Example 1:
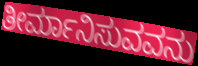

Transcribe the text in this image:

ತೀರ್ಮಾನಿಸುವವನು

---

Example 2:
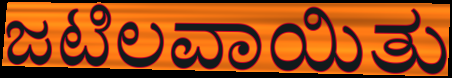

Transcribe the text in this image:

ಜಟಿಲವಾಯಿತು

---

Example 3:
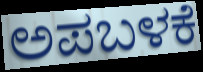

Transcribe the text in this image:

ಅಪಬಳಕೆ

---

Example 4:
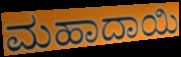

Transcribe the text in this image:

ಮಹಾದಾಯಿ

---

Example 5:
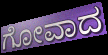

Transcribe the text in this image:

ಗೋವಾದ